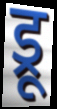
ड्रू